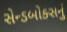
સેન્ડબોક્સનું